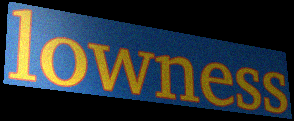
lowness